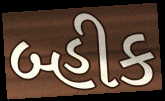
બ્હીક